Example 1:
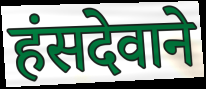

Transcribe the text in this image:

हंसदेवाने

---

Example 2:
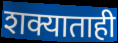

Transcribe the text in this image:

शक्याताही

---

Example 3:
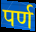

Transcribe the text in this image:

पर्ण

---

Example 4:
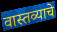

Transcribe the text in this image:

वास्तव्याचे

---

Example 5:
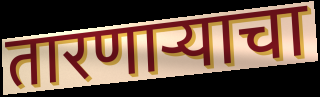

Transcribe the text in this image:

तारणाऱ्याचा